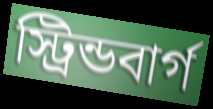
স্ট্রিন্ডবার্গ